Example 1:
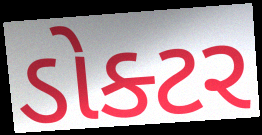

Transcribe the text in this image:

ડોક્ટર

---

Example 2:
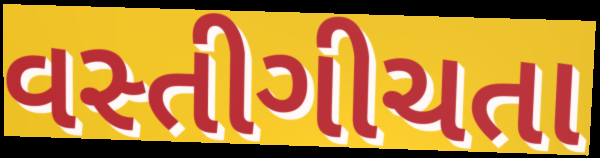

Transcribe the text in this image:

વસ્તીગીચતા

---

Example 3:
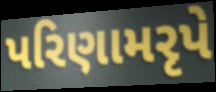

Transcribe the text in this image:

પરિણામરૃપે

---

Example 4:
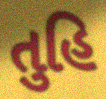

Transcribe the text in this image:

તુહિ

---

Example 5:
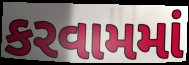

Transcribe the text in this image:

કરવામમાં